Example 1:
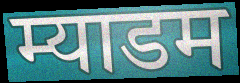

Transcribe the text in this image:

म्याडम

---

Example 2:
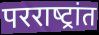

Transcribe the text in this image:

परराष्ट्रांत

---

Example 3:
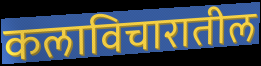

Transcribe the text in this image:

कलाविचारातील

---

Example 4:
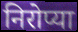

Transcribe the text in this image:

निरोप्या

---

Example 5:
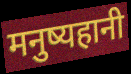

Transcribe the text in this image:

मनुष्यहानी